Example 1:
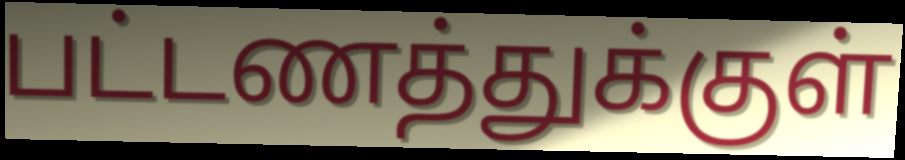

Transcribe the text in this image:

பட்டணத்துக்குள்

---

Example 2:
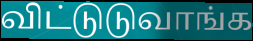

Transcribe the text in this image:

விட்டுடுவாங்க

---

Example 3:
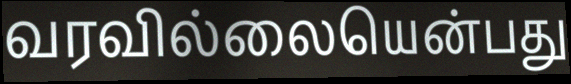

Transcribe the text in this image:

வரவில்லையென்பது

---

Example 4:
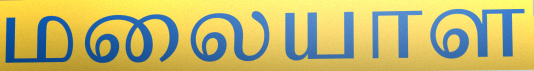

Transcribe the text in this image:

மலையாள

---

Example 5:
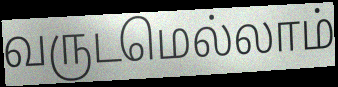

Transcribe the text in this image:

வருடமெல்லாம்